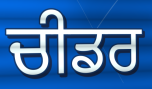
ਚੀਡਰ